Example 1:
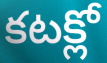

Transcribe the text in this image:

కటక్లో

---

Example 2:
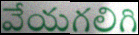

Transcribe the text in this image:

వేయగలిగి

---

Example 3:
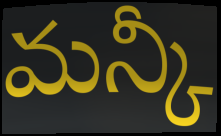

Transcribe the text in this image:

మన్కీ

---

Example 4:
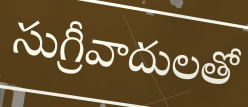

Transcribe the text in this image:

సుగ్రీవాదులతో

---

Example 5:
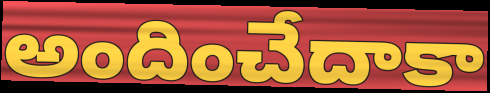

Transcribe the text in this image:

అందించేదాకా